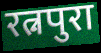
रत्नपुरा